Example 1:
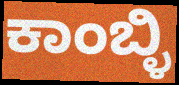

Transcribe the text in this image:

ಕಾಂಬ್ಳಿ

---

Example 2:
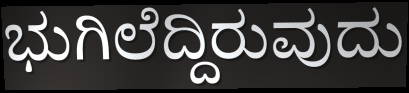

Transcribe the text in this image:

ಭುಗಿಲೆದ್ದಿರುವುದು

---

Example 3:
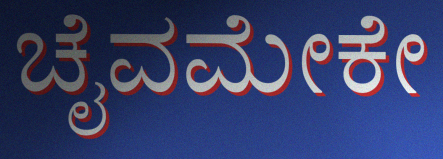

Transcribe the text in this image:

ಚೈವಮೇಕೇ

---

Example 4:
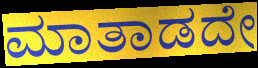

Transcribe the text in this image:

ಮಾತಾಡದೇ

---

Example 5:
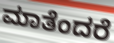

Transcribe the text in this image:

ಮಾತೆಂದರೆ